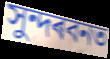
সুন্দৰবনত